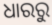
ଧାରରୁ